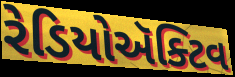
રેડિયોઍક્ટિવ